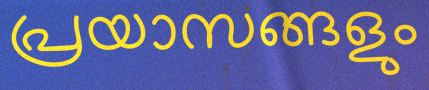
പ്രയാസങ്ങളും